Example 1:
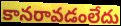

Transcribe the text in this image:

కానరావడంలేదు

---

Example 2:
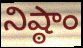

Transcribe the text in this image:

నిష్ఠాం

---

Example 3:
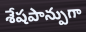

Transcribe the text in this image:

శేషపాన్పుగా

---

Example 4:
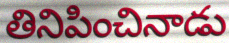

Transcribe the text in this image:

తినిపించినాడు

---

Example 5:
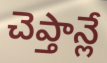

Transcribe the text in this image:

చెప్తాన్లే